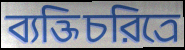
ব্যক্তিচরিত্রে